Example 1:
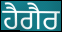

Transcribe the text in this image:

ਹੈਗੈਰ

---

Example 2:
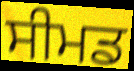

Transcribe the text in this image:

ਸੀਮਡ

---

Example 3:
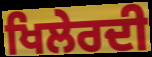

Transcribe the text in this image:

ਖਿਲੇਰਦੀ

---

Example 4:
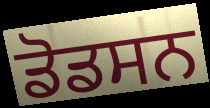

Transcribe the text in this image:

ਡੋਡਸਨ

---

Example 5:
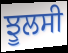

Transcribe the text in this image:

ਝੂਲਸੀ